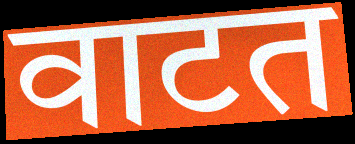
वाटत